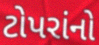
ટોપરાંનો